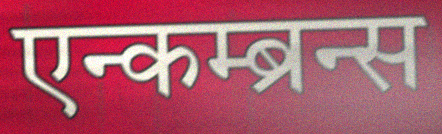
एन्कम्ब्रन्स